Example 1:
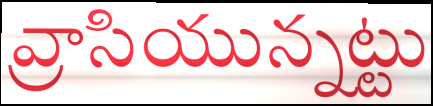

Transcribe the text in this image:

వ్రాసియున్నట్టు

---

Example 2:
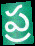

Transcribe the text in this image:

ప్ర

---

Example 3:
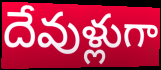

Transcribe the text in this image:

దేవుళ్లుగా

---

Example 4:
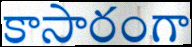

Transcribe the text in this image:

కాసారంగా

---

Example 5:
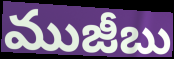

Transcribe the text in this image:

ముజీబు